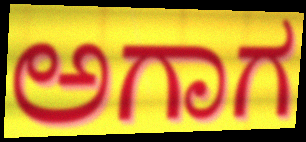
ಅಗಾಗ